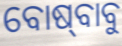
ବୋଷ୍‍ବାବୁ